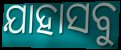
ଯାହାସବୁ